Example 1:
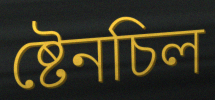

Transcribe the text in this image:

ষ্টেনচিল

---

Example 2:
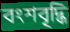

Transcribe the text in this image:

বংশবৃদ্ধি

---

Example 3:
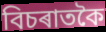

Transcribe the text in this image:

বিচৰাতকৈ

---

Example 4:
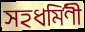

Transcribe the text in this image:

সহধৰ্মিণী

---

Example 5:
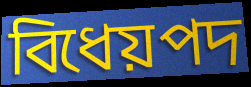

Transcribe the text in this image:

বিধেয়পদ